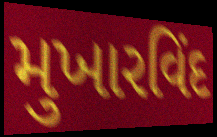
મુખારવિંદ